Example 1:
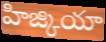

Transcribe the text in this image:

హిజ్కియా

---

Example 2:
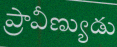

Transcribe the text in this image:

ప్రావీణ్యుడు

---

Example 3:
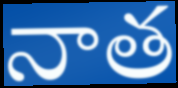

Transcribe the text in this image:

నాత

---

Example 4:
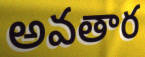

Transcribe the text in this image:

అవతార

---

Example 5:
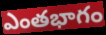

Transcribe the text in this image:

ఎంతభాగం